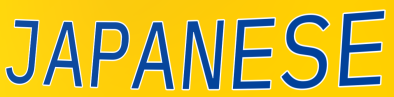
JAPANESE